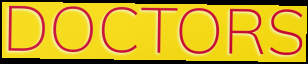
DOCTORS